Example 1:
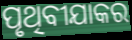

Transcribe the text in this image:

ପୃଥିବୀଯାକର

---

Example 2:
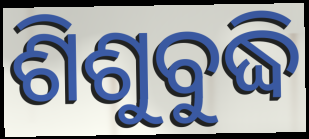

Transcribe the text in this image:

ଶିଶୁବୁଦ୍ଧି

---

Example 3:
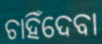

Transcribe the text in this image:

ଚାହିଁଦେବା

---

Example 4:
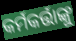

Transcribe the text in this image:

କର୍ମକର୍ତ୍ତାଙ୍କୁ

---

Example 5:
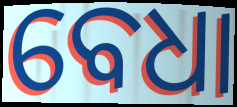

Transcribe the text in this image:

ବେଧା